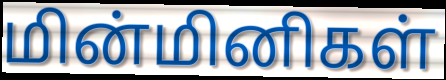
மின்மினிகள்